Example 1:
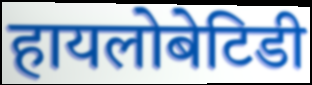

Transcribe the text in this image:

हायलोबेटिडी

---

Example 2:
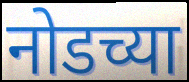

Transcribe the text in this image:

नोडच्या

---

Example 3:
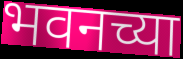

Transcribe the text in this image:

भवनच्या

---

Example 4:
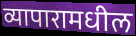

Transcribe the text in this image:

व्यापारामधील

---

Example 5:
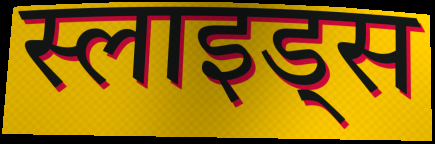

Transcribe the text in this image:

स्लाइड्स